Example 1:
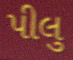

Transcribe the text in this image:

પીલુ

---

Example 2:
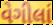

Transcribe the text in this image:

વેગીલાં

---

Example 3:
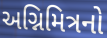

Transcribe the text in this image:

અગ્નિમિત્રનો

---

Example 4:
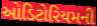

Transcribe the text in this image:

ઓડિટોરિયમની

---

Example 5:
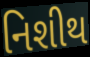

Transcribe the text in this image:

નિશીથ